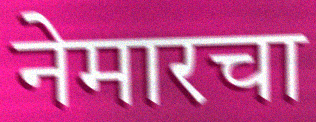
नेमारचा